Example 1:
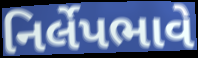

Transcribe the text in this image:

નિર્લેપભાવે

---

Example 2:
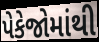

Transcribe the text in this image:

પેકેજોમાંથી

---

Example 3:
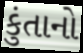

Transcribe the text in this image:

કુંતાનો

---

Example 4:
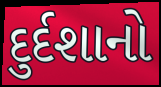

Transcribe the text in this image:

દુર્દશાનો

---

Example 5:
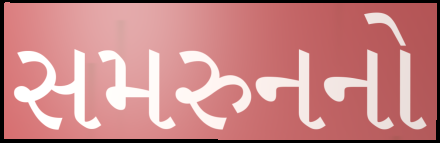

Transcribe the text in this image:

સમરુનનો